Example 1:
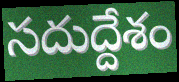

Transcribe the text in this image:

సదుద్దేశం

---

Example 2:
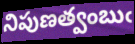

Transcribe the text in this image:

నిపుణత్వంబుఁ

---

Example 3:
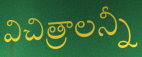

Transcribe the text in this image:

విచిత్రాలన్నీ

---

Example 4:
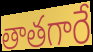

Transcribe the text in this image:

తాతగారే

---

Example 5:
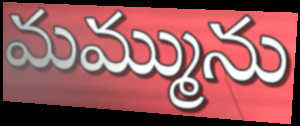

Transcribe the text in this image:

మమ్మును